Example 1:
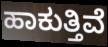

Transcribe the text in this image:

ಹಾಕುತ್ತಿವೆ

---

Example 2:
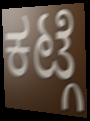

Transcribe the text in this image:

ಕಟ್ಗೆ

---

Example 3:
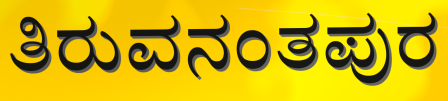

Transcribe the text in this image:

ತಿರುವನಂತಪುರ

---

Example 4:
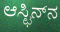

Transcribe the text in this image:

ಆಸ್ಟಿನ್‌ನ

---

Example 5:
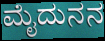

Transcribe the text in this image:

ಮೈದುನನ